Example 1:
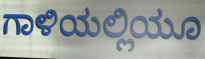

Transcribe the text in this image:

ಗಾಳಿಯಲ್ಲಿಯೂ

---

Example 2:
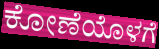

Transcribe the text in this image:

ಕೋಣೆಯೊಳಗೆ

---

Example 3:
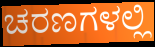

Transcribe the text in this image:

ಚರಣಗಳಲ್ಲಿ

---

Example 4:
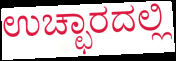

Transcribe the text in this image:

ಉಚ್ಛಾರದಲ್ಲಿ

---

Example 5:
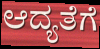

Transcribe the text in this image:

ಆದ್ಯತೆಗೆ